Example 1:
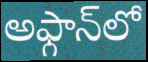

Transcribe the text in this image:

అఫ్గాన్‌లో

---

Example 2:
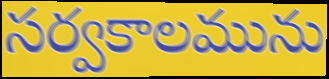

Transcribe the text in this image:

సర్వకాలమును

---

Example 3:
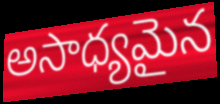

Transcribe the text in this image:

అసాధ్యమైన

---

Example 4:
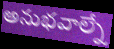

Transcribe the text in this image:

అనుభవాల్నే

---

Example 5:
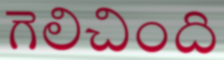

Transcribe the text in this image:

గెలిచింది